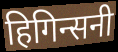
हिगिन्सनी